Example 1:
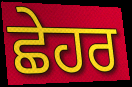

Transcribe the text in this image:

ਛੇਹਰ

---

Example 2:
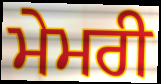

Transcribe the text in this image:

ਮੇਮਰੀ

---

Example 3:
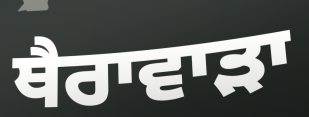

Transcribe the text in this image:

ਥੈਰਾਵਾੜਾ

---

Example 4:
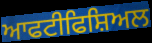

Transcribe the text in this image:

ਆਫਟੀਫਿਸ਼ਿਅਲ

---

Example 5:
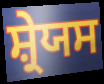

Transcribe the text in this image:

ਸ਼੍ਰੇਯਸ